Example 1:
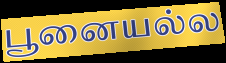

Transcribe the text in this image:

பூனையல்ல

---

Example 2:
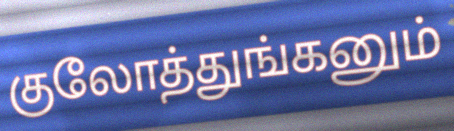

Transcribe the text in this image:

குலோத்துங்கனும்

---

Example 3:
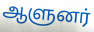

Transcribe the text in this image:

ஆளுனர்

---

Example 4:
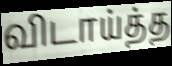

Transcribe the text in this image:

விடாய்த்த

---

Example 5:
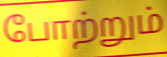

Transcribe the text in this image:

போற்றும்